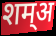
शम्अ